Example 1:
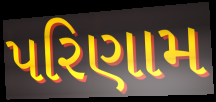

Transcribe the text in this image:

પરિણામ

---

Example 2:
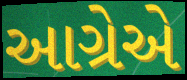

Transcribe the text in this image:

આગ્રેએ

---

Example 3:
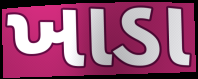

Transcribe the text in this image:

ખાડા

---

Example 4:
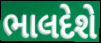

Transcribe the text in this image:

ભાલદેશે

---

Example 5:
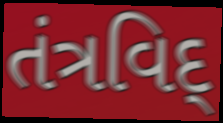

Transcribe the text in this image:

તંત્રવિદ્